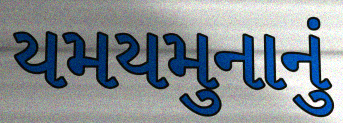
યમયમુનાનું